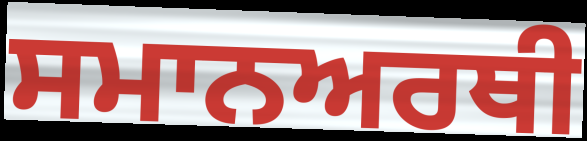
ਸਮਾਨਅਰਥੀ